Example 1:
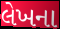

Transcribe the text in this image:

લેખના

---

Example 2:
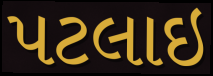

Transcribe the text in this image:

પટલાઇ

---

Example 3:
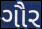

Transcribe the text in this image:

ગૌર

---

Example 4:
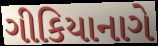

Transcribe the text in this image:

ગીકિયાનાગે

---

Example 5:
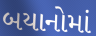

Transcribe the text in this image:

બયાનોમાં